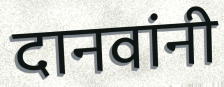
दानवांनी